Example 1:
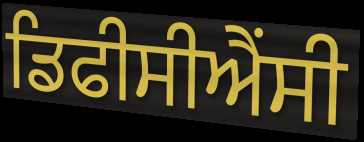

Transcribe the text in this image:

ਡਿਫੀਸੀਐਂਸੀ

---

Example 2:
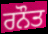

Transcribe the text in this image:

ਰਨੌਤ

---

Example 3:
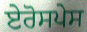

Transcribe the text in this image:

ਏਰੋਸਪੇਸ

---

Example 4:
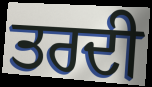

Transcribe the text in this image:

ਤਰਦੀ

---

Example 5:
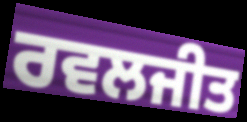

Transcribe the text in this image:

ਰਵਲਜੀਤ